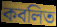
কবলিত